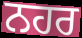
ਨਹਰ